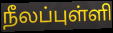
நீலப்புள்ளி